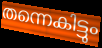
തന്നെകിട്ടും